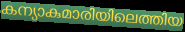
കന്യാകുമാരിയിലെത്തിയ